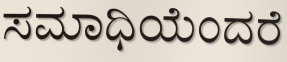
ಸಮಾಧಿಯೆಂದರೆ